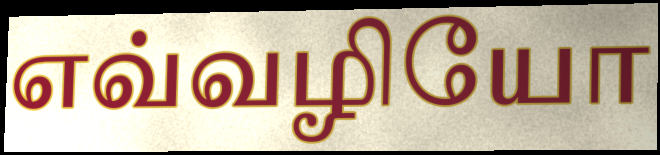
எவ்வழியோ